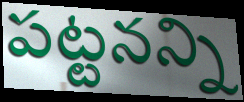
పట్టనన్ని